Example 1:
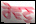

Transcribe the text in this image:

ਰੋਵਣੁ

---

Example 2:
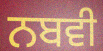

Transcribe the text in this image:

ਨਬਵੀ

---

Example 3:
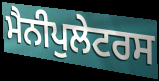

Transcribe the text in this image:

ਮੈਨੀਪੁਲੇਟਰਸ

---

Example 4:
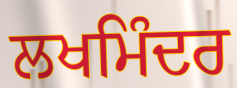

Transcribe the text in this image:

ਲਖਮਿੰਦਰ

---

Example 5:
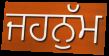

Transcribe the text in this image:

ਜਹਨੁੱਮ